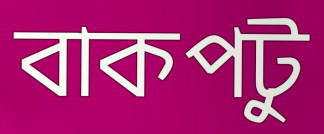
বাকপটু